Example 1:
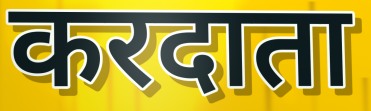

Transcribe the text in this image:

करदाता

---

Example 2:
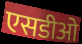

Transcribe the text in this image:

एसडीओ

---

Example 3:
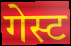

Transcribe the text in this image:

गेस्ट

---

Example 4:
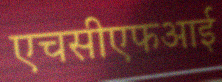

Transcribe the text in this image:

एचसीएफआई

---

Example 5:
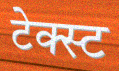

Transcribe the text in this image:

टेक्स्ट